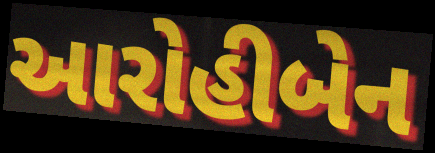
આરોહીબેન